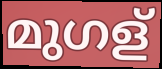
മുഗള്